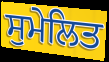
ਸੁਮੇਲਿਤ